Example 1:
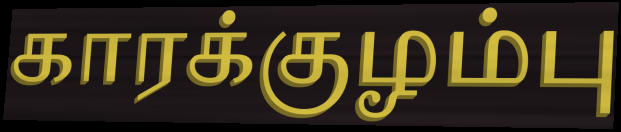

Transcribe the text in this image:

காரக்குழம்பு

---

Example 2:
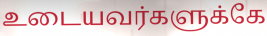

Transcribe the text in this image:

உடையவர்களுக்கே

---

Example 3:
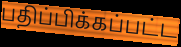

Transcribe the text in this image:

பதிப்பிக்கப்பட்ட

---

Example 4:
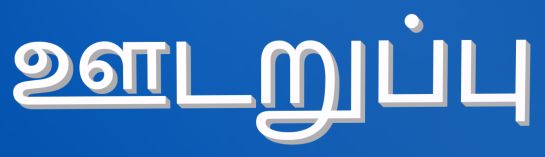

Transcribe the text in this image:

ஊடறுப்பு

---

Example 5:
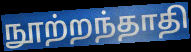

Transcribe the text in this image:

நூற்றந்தாதி